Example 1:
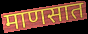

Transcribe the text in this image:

माणसात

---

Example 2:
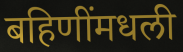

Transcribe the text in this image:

बहिणींमधली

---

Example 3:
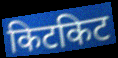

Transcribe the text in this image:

किटकिट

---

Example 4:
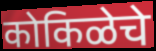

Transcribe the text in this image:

कोकिळेचे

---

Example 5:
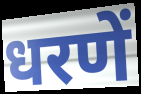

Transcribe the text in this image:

धरणें